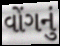
વોંગનું